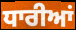
ਧਾਰੀਆਂ